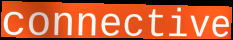
connective